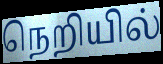
நெறியில்